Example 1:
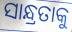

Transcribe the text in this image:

ସାନ୍ଧ୍ରତାକୁ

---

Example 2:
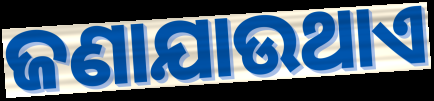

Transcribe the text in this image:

ଜଣାଯାଉଥାଏ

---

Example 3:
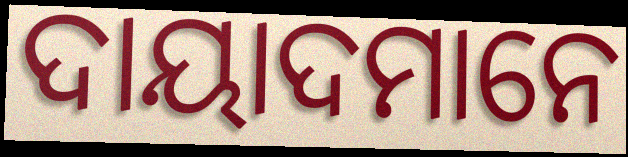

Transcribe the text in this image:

ଦାୟାଦମାନେ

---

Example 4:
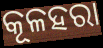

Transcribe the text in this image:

କୂଳହରା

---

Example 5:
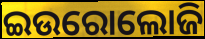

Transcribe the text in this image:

ଇଉରୋଲୋଜି